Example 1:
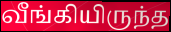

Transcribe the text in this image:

வீங்கியிருந்த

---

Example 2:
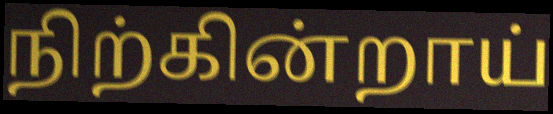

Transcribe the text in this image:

நிற்கின்றாய்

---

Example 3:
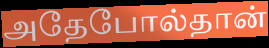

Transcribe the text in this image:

அதேபோல்தான்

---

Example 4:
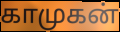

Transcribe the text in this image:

காமுகன்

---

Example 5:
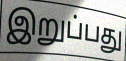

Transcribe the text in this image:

இறுப்பது